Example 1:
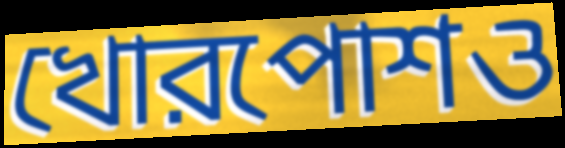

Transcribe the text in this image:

খোরপোশও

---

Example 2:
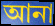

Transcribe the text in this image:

আনা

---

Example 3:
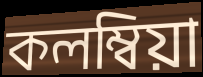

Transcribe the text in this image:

কলম্বিয়া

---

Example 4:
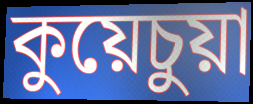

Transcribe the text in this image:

কুয়েচুয়া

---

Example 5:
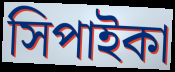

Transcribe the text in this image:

সিপাইকা